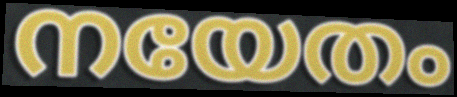
നയേതം